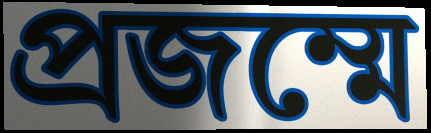
প্রজম্মে